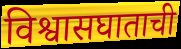
विश्वासघाताची